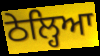
ਠੇਲ੍ਹਿਆ